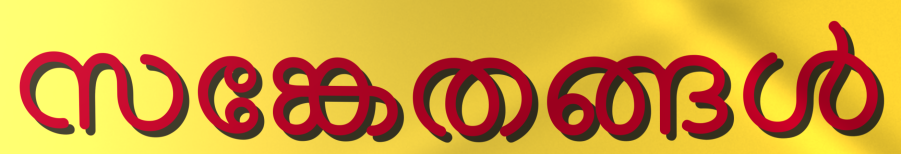
സങ്കേതങ്ങൾ